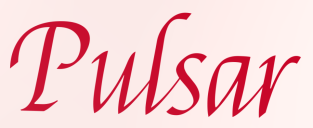
Pulsar